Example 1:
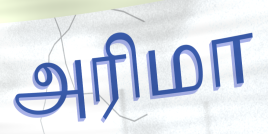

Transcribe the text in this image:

அரிமா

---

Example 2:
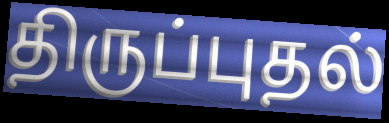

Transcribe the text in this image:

திருப்புதல்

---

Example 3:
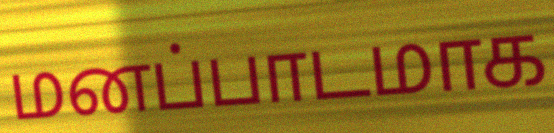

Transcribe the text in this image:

மனப்பாடமாக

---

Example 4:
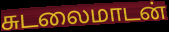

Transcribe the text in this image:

சுடலைமாடன்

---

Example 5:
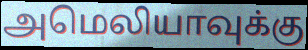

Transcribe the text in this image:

அமெலியாவுக்கு